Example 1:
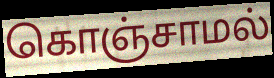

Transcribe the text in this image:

கொஞ்சாமல்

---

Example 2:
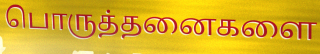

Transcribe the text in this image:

பொருத்தனைகளை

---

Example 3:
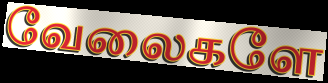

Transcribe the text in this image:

வேலைகளே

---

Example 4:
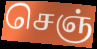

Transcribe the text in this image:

செஞ்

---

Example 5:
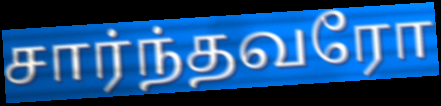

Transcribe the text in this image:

சார்ந்தவரோ